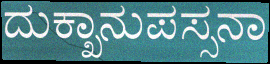
ದುಕ್ಖಾನುಪಸ್ಸನಾ